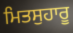
ਮਿਤਸੁਹਾਰੂ